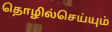
தொழில்செய்யும்